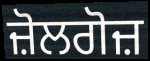
ਜ਼ੋਲਗੋਜ਼